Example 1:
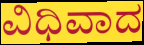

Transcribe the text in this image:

ವಿಧಿವಾದ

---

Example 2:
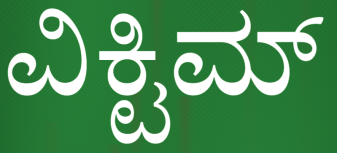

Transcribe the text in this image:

ವಿಕ್ಟಿಮ್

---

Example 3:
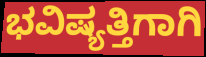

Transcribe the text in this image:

ಭವಿಷ್ಯತ್ತಿಗಾಗಿ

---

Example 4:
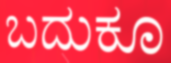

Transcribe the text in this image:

ಬದುಕೂ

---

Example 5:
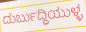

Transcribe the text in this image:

ದುರ್ಬುದ್ಧಿಯುಳ್ಳ